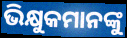
ଭିକ୍ଷୁକମାନଙ୍କୁ